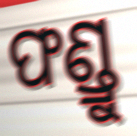
ଫଣ୍ଡ୍ରୁ